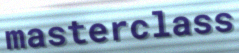
masterclass